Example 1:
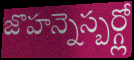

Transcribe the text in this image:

జొహన్నెస్బర్గ్లో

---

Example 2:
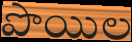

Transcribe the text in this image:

పొయిల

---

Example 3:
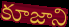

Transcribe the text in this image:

కూజాని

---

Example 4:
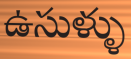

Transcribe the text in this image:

ఉసుళ్ళు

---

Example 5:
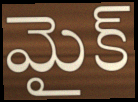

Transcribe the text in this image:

మైక్